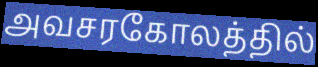
அவசரகோலத்தில்